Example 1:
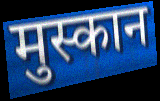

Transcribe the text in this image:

मुस्‍कान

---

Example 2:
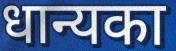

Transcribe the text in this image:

धान्यका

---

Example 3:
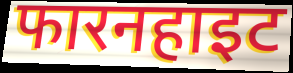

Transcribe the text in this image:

फारनहाइट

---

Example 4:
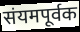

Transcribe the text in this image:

संयमपूर्वक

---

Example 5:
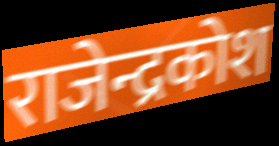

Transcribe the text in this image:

राजेन्द्रकोश